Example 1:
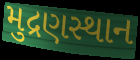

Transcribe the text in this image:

મુદ્રણસ્થાન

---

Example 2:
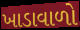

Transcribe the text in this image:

ખાડાવાળો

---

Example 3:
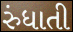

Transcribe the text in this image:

રુંધાતી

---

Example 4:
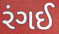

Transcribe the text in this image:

રંગઈ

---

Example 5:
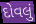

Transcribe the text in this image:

દોવલું